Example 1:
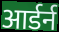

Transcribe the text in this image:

आर्डर्न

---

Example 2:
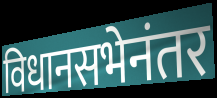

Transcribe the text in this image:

विधानसभेनंतर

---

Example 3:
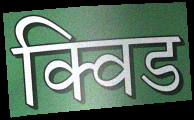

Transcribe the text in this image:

क्विड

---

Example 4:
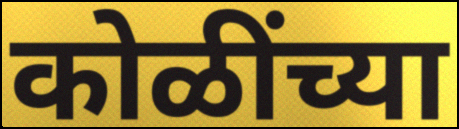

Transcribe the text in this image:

कोळींच्या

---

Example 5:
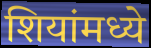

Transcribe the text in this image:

शियांमध्ये